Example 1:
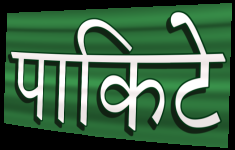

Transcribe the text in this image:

पाकिटे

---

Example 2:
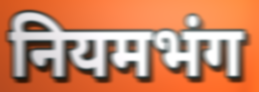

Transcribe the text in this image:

नियमभंग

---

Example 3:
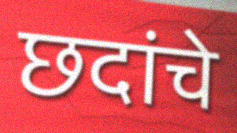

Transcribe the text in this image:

छदांचे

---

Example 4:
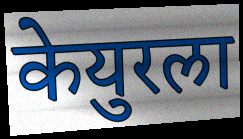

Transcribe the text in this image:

केयुरला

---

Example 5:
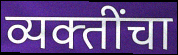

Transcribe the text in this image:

व्यक्‍तींचा